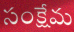
సంక్షేమ